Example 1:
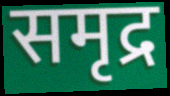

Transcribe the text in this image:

समृद्र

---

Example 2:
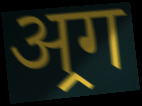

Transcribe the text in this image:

अ्रग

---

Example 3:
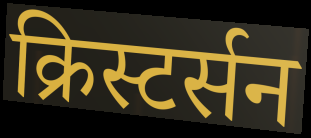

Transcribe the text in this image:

क्रिस्टर्सन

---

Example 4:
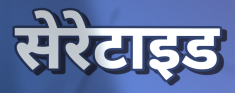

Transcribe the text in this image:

सेरेटाइड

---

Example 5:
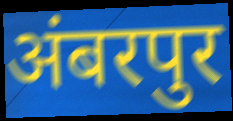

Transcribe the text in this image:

अंबरपुर